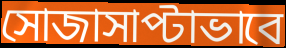
সোজাসাপ্টাভাবে